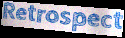
Retrospect